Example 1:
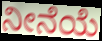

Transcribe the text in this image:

ನೀನೆಯೆ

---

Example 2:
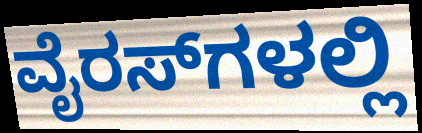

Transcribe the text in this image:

ವೈರಸ್‌ಗಳಲ್ಲಿ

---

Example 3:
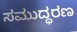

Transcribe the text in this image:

ಸಮುದ್ಧರಣ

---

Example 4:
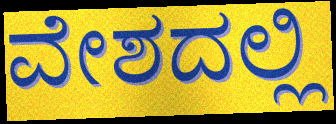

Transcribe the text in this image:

ವೇಶದಲ್ಲಿ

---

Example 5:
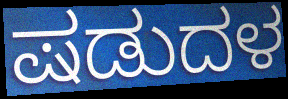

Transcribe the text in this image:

ಷಡುದಳ